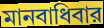
মানবাধিবার